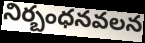
నిర్బంధనవలన